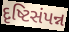
દૃષ્ટિસંપન્ન